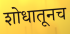
शोधातूनच